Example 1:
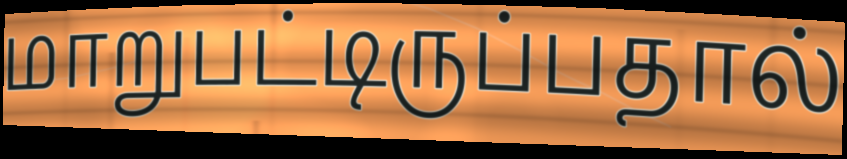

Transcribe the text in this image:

மாறுபட்டிருப்பதால்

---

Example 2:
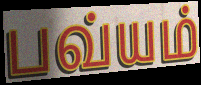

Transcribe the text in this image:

பவ்யம்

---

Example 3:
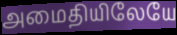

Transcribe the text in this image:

அமைதியிலேயே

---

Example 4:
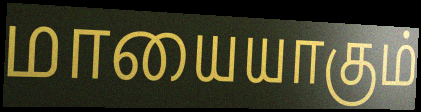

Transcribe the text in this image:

மாயையாகும்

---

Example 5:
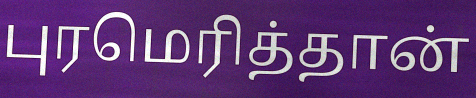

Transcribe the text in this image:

புரமெரித்தான்